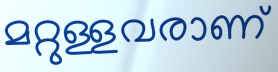
മറ്റുള്ളവരാണ്